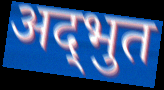
अद्‍भुत